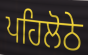
ਪਹਿਲੋਠੇ